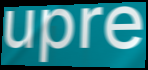
upre